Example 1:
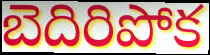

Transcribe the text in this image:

బెదిరిపోక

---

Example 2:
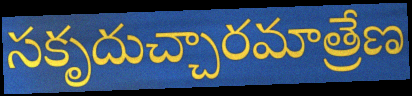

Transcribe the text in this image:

సకృదుచ్చారమాత్రేణ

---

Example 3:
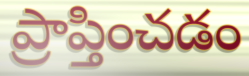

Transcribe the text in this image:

ప్రాప్తించడం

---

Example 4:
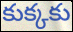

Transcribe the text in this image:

కుక్కకు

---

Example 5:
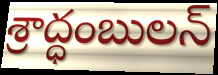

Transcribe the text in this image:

శ్రాద్ధంబులన్